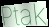
Ptak